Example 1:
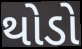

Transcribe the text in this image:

થોડો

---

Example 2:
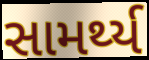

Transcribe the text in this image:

સામર્થ્ય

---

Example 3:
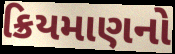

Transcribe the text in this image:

ક્રિયમાણનો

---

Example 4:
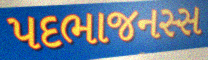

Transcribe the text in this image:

પદભાજનસ્સ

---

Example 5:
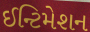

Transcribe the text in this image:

ઈન્ટિમેશન